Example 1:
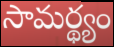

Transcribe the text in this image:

సామర్థ్యం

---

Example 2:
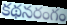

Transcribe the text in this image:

కథనరంగం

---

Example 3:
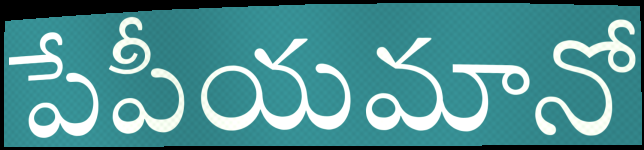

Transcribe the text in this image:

పేపీయమానో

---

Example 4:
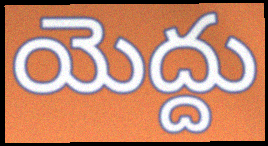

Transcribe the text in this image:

యెద్దు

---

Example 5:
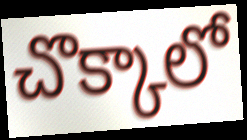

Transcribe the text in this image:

చొక్కాలో